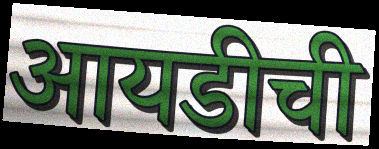
आयडीची